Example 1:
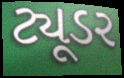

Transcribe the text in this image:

ટ્યૂડર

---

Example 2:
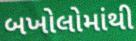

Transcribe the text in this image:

બખોલોમાંથી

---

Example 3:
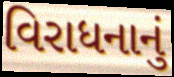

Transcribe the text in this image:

વિરાધનાનું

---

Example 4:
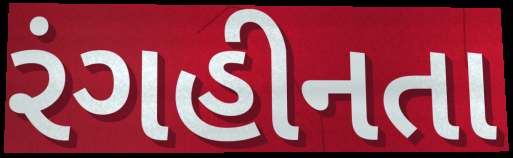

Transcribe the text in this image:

રંગહીનતા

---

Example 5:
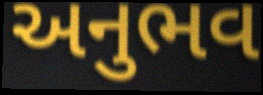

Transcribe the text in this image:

અનુભવ